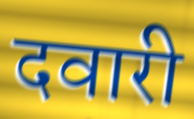
दवारी